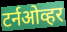
टर्नओव्हर